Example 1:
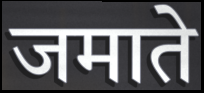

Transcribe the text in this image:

जमाते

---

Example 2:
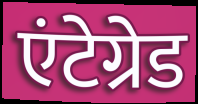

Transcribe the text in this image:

एंटेग्रेड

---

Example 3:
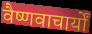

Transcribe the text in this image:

वैष्णवाचार्यों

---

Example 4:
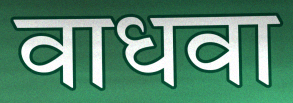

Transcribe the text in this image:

वाधवा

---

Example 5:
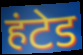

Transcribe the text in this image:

हंटेड